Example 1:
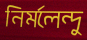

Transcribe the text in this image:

নির্মলেন্দু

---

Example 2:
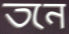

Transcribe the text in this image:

তনে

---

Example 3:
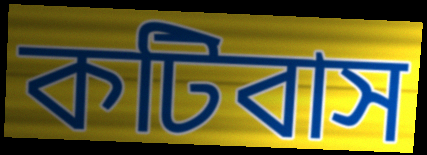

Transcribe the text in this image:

কটিবাস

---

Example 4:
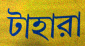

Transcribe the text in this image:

টাহারা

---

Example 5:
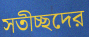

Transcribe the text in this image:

সতীচ্ছদের